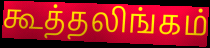
கூத்தலிங்கம்